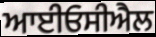
ਆਈਓਸੀਐਲ